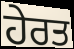
ਹੇਰਤ